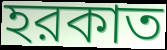
হরকাত